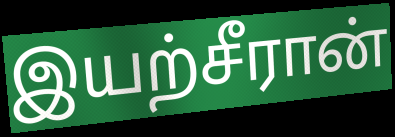
இயற்சீரான்